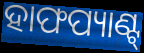
ହାଫପ୍ୟାଣ୍ଟ୍